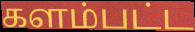
களம்பட்ட